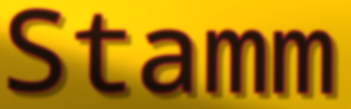
Stamm